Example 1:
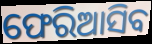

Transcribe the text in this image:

ଫେରିଆସିବ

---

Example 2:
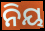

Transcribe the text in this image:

ନିୟ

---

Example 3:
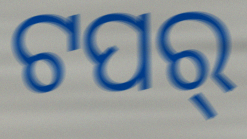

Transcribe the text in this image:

ଟପର୍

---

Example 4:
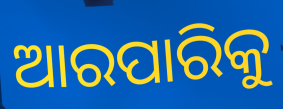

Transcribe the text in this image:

ଆରପାରିକୁ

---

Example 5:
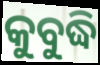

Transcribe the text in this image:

କୁବୁଦ୍ଧି